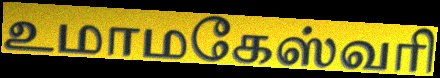
உமாமகேஸ்வரி